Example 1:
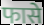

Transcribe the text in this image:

फासे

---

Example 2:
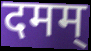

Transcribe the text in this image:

दमम्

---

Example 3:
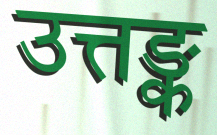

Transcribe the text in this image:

उत्तङ्क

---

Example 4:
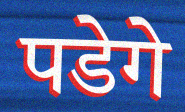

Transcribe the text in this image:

पडेगे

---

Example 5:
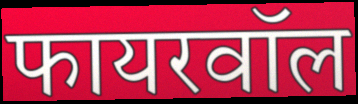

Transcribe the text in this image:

फायरवॉल